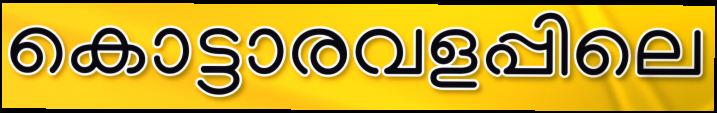
കൊട്ടാരവളപ്പിലെ